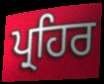
ਪ੍ਰਹਿਰ